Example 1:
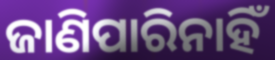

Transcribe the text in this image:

ଜାଣିପାରିନାହିଁ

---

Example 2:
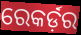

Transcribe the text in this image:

ରେକର୍ଡ଼ର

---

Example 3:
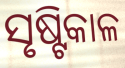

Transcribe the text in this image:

ସୃଷ୍ଟିକାଳ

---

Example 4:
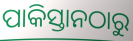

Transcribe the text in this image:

ପାକିସ୍ତାନଠାରୁ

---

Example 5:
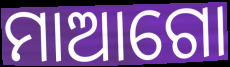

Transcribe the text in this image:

ମାଆଗୋ